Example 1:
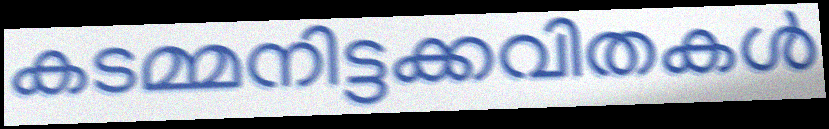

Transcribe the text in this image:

കടമ്മനിട്ടക്കവിതകൾ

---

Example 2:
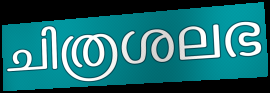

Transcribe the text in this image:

ചിത്രശലഭ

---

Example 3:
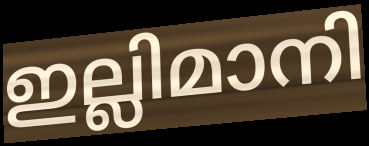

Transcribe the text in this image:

ഇല്ലിമാനി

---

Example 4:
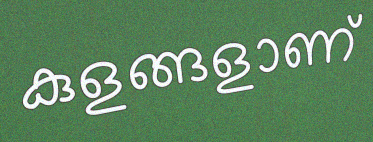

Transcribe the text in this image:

കുളങ്ങളാണ്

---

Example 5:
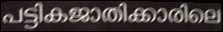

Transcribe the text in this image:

പട്ടികജാതിക്കാരിലെ